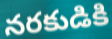
నరకుడికి